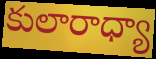
కులారాధ్యా